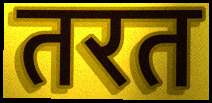
तरत